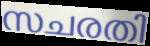
സചരതി